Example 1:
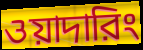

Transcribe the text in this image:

ওয়াদারিং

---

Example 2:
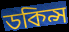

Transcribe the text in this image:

ডকিন্স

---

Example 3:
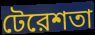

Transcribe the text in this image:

টেরেশতা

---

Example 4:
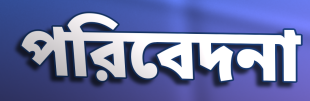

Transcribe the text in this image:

পরিবেদনা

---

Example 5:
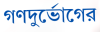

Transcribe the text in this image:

গণদুর্ভোগের